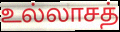
உல்லாசத்